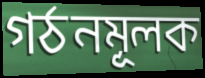
গঠনমূলক